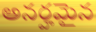
అనర్హమైన